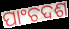
ପାଂଚଦଶ